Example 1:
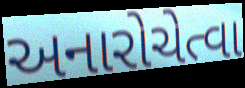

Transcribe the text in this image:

અનારોચેત્વા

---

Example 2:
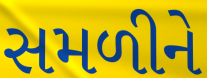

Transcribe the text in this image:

સમળીને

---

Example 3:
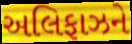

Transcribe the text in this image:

અલિફાઝને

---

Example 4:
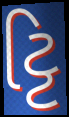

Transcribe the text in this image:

ટ્ટિ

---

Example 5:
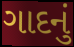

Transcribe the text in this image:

ગાદનું